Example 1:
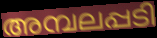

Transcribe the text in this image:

അമ്പലപ്പടി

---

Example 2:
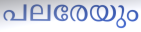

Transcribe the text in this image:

പലരേയും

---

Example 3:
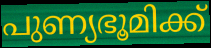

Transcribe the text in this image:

പുണ്യഭൂമിക്ക്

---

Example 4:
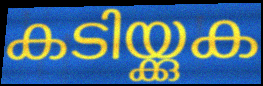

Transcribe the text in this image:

കടിയ്ക്കുക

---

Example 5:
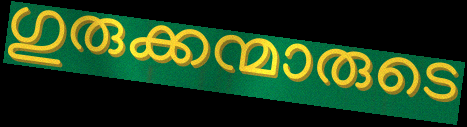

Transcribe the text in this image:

ഗുരുക്കന്മാരുടെ